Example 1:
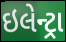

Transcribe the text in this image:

ઇલેન્ટ્રા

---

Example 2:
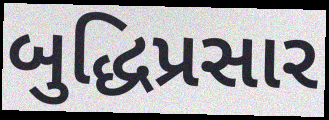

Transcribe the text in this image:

બુદ્ધિપ્રસાર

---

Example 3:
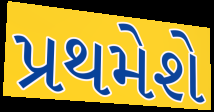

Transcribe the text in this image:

પ્રથમેશે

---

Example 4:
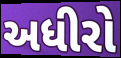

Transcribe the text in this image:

અધીરો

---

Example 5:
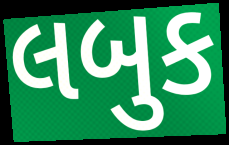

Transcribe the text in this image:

લબુક